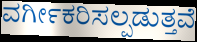
ವರ್ಗೀಕರಿಸಲ್ಪಡುತ್ತವೆ